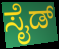
ಸೈಡ್